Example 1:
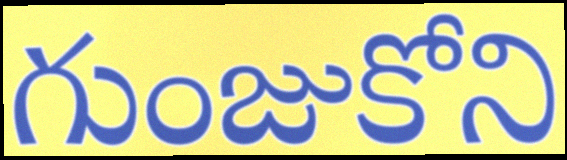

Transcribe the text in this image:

గుంజుకోని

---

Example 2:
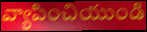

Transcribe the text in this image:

వ్యాపించియుండి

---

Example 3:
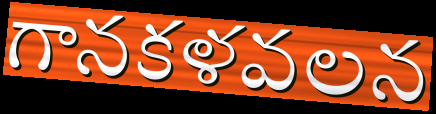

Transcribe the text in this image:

గానకళవలన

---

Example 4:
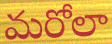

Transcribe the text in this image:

మరోలా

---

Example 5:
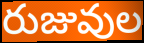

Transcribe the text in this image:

రుజువుల